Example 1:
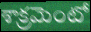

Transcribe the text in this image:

శాక్రమెంటో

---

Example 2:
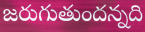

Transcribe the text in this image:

జరుగుతుందన్నది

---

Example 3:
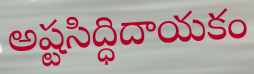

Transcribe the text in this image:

అష్టసిద్ధిదాయకం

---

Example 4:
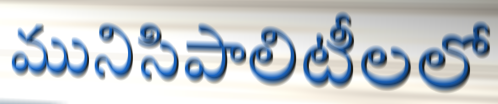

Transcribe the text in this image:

మునిసిపాలిటీలలో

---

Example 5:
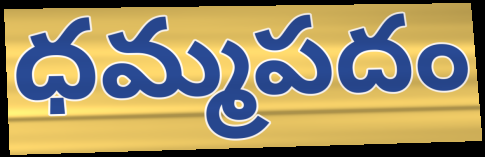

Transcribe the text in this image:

ధమ్మపదం